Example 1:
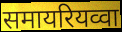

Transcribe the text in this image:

समायरियव्वा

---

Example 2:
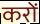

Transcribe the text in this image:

करों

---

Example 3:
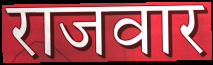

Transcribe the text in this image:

राजवार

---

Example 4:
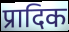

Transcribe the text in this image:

प्रादिक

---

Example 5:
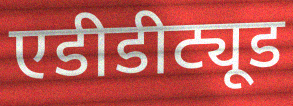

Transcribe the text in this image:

एडीडीट्यूड